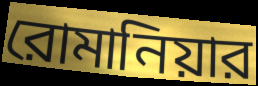
রোমানিয়ার